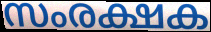
സംരക്ഷക